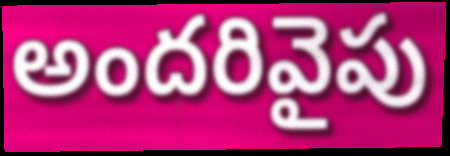
అందరివైపు